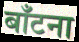
बाँटना